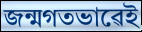
জন্মগতভাৱেই